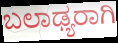
ಬಲಾಢ್ಯರಾಗಿ